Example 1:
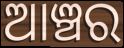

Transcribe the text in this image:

ଆଞ୍ଚର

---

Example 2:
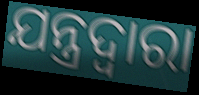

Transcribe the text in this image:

ଯନ୍ତ୍ରଦ୍ବାରା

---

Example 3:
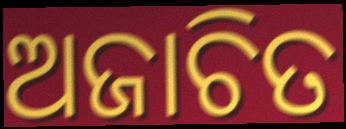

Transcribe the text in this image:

ଅଜାଚିତ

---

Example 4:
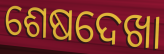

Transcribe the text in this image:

ଶେଷଦେଖା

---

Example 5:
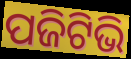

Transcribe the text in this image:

ପଜିଟିଭି